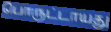
பொருட்டாயது